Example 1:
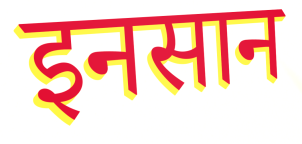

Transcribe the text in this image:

इनसान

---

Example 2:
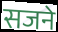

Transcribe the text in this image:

सजने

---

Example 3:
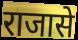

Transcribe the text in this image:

राजासे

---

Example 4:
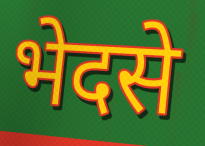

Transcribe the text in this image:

भेदसे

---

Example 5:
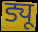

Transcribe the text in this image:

ड्यू